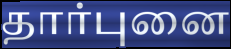
தார்புனை